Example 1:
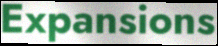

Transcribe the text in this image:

Expansions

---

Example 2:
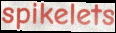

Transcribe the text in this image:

spikelets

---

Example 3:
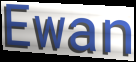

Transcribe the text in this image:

Ewan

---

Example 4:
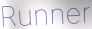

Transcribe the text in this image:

Runner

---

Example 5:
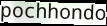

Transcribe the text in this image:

pochhondo